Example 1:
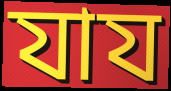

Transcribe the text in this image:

যায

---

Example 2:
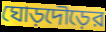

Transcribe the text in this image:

ঘোড়দৌড়ের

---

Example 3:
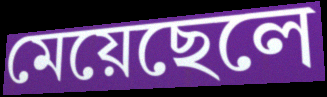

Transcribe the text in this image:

মেয়েছেলে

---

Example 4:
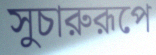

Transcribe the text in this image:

সুচারুরূপে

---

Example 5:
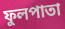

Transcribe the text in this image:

ফুলপাতা